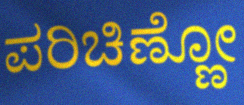
ಪರಿಚಿಣ್ಣೋ